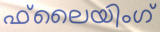
ഫ്‌ലൈയിംഗ്